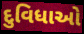
દુવિધાઓ